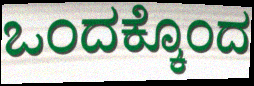
ಒಂದಕ್ಕೊಂದ